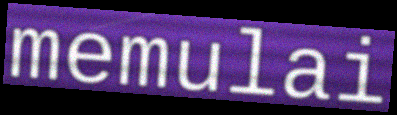
memulai